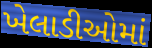
ખેલાડીઓમાં